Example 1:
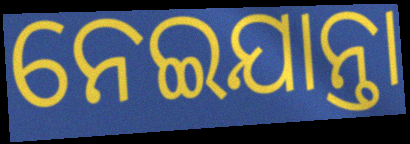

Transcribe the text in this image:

ନେଇଯାନ୍ତା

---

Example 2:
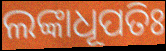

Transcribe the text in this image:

ଲଙ୍କାଧୂପତିଃ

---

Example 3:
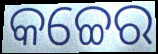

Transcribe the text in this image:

କଚ୍ଚେର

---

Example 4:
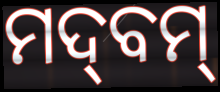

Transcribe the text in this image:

ମଦ୍‌ବମ୍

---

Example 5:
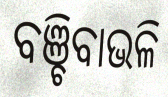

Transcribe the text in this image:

ବଞ୍ଚିବାଭଳି